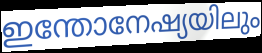
ഇന്തോനേഷ്യയിലും